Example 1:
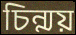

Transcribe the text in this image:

চিন্ময়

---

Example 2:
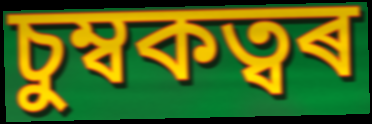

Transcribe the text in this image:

চুম্বকত্বৰ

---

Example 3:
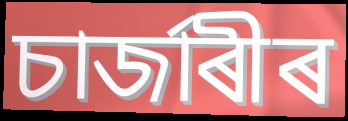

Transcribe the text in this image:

চাৰ্জাৰীৰ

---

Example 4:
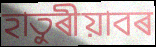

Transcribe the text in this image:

হাতুৰীয়াবৰ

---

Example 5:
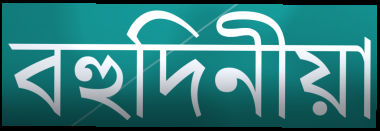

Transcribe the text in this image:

বহুদিনীয়া